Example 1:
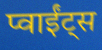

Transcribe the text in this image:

प्वाईंट्स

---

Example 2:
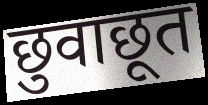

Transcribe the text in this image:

छुवाछूत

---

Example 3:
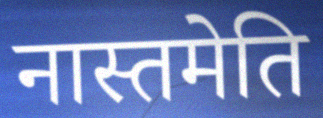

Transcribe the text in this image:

नास्तमेति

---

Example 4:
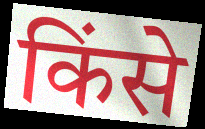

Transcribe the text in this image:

किंसे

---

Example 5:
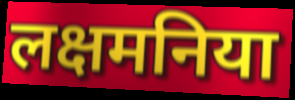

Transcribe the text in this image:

लक्षमनिया